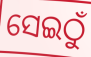
ସେଇଠୁଁ